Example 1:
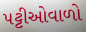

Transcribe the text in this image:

પટ્ટીઓવાળો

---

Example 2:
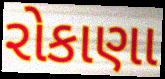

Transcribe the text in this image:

રોકાણા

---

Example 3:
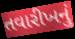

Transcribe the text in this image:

તવારીખનું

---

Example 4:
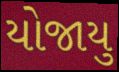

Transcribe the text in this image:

યોજાયુ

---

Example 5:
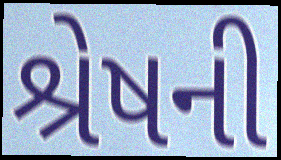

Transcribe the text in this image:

શ્રેષની